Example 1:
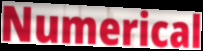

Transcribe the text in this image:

Numerical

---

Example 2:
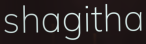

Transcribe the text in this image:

shagitha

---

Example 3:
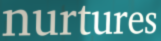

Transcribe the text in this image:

nurtures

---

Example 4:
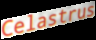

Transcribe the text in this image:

Celastrus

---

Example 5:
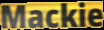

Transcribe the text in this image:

Mackie